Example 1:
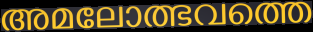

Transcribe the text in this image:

അമലോത്ഭവത്തെ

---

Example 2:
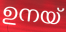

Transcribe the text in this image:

ഉനയ്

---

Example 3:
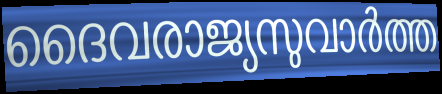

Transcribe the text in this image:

ദൈവരാജ്യസുവാർത്ത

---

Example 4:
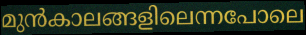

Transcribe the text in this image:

മുൻകാലങ്ങളിലെന്നപോലെ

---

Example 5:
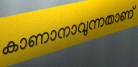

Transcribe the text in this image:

കാണാനാവുന്നതാണ്